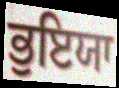
ਭੁਇਯਾ